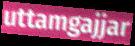
uttamgajjar